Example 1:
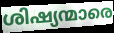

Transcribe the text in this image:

ശിഷ്യന്മാരെ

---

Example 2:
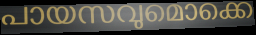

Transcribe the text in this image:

പായസവുമൊക്കെ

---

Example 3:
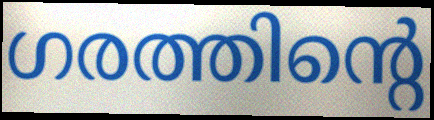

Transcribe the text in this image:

ഗരത്തിന്റെ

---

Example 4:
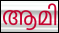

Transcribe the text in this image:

ആമി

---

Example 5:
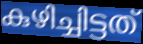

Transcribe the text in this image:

കുഴിച്ചിട്ടത്